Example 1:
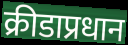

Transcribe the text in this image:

क्रीडाप्रधान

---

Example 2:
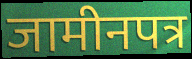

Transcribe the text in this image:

जामीनपत्र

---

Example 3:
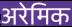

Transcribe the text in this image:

अरेमिक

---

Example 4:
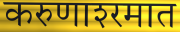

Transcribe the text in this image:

करुणाश्रमात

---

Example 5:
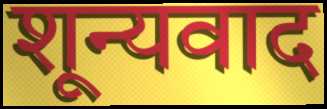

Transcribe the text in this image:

शून्यवाद